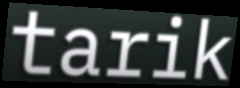
tarik